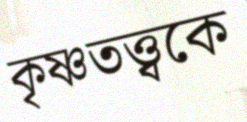
কৃষ্ণতত্ত্বকে